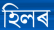
হিলৰ